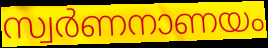
സ്വർണനാണയം